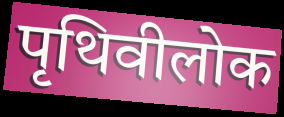
पृथिवीलोक